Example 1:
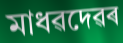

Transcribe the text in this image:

মাধৱদেৱৰ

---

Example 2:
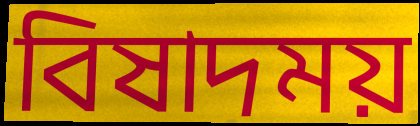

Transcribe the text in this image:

বিষাদময়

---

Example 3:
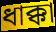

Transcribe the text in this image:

ধাক্কা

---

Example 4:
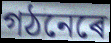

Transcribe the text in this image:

গঠনেৰে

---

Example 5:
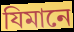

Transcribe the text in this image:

যিমানে